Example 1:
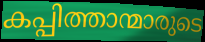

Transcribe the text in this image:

കപ്പിത്താന്മാരുടെ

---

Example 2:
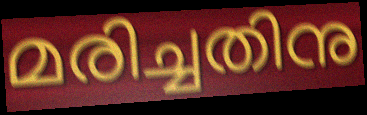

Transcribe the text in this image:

മരിച്ചതിനു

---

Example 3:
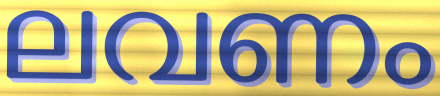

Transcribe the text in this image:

ലവണം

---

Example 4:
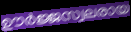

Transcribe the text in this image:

ഊർജ്ജസ്വലരായ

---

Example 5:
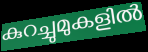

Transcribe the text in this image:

കുറച്ചുമുകളിൽ